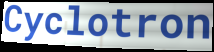
Cyclotron